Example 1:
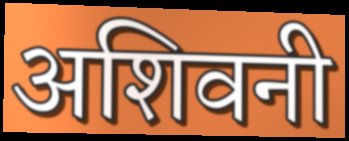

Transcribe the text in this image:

अशिवनी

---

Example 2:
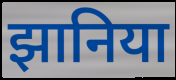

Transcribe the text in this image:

झानिया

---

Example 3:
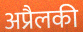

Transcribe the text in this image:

अप्रैलकी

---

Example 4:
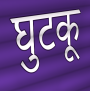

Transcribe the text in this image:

घुटकू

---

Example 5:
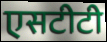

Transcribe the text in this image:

एसटीटी